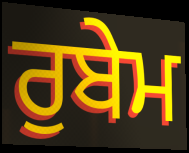
ਰੁਬੇਮ